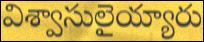
విశ్వాసులైయ్యారు